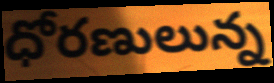
ధోరణులున్న